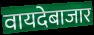
वायदेबाजार